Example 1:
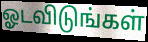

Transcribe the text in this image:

ஓடவிடுங்கள்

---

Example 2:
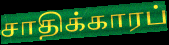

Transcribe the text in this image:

சாதிக்காரப்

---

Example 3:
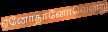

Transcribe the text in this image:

ஏனோதானோவென்று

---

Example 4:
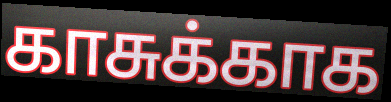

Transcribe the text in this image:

காசுக்காக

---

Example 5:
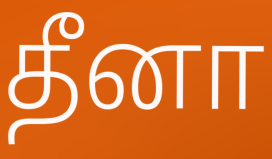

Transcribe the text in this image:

தீனா